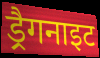
ड्रैगनाइट